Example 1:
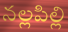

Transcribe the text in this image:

నల్లపిల్లి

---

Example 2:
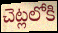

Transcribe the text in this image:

చెట్లలోకి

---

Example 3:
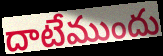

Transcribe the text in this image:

దాటేముందు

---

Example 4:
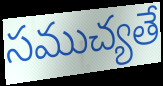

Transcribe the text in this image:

సముచ్యతే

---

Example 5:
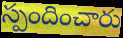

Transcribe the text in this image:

స్పందించారు